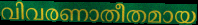
വിവരണാതീതമായ